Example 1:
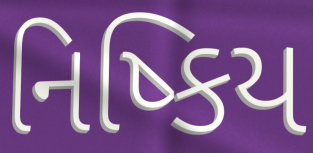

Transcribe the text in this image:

નિષ્કિય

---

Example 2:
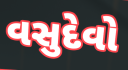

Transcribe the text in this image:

વસુદેવો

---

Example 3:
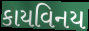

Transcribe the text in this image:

કાયવિનય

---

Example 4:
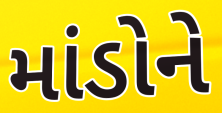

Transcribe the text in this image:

માંડોને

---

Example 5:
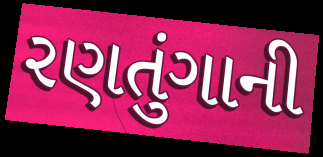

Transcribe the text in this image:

રણતુંગાની